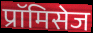
प्रॉमिसेज